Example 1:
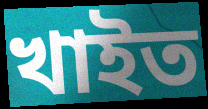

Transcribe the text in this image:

খাইত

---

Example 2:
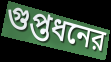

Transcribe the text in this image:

গুপ্তধনের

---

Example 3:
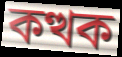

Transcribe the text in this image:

কত্থক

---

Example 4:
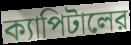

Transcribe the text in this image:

ক্যাপিটালের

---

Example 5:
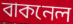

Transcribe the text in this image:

বাকনেল